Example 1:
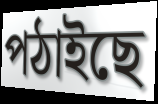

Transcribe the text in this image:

পঠাইছে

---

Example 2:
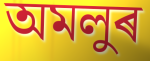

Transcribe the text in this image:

অমলুৰ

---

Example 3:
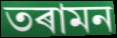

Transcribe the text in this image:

তৰামন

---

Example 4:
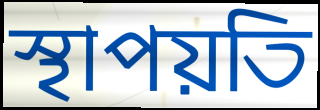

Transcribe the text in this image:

স্থাপয়তি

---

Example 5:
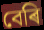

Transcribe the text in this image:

বেৰি